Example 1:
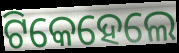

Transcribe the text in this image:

ଟିକେହେଲେ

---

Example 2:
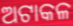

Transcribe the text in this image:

ଅଟାକଳ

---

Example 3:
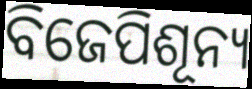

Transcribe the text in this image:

ବିଜେପିଶୂନ୍ୟ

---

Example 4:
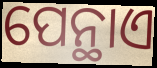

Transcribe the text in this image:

ପେନ୍ଥାଏ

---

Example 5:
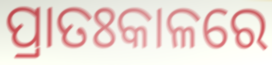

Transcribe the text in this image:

ପ୍ରାତଃକାଳରେ